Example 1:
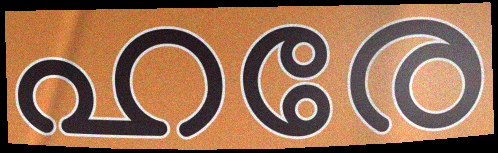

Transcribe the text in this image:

ഹരേ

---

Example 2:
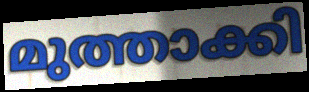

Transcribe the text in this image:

മുത്താക്കി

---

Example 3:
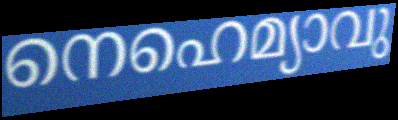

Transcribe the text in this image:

നെഹെമ്യാവു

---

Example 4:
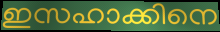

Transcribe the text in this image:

ഇസഹാക്കിനെ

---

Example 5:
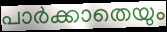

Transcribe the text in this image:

പാർക്കാതെയും